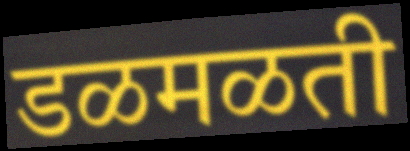
डळमळती